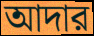
আদার